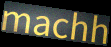
machh